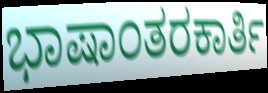
ಭಾಷಾಂತರಕಾರ್ತಿ